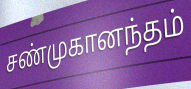
சண்முகானந்தம்